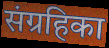
संग्रहिका